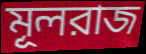
মূলরাজ